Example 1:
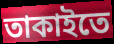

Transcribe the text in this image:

তাকাইতে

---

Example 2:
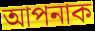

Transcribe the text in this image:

আপনাক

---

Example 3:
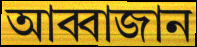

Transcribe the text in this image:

আব্বাজান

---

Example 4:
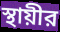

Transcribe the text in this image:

স্থায়ীর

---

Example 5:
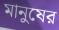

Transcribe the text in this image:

মানুষের